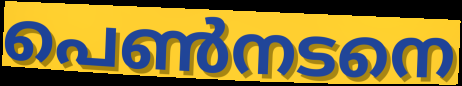
പെൺനടനെ